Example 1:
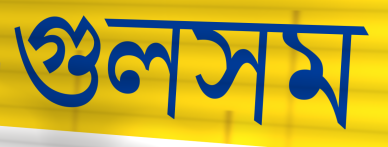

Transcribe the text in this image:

গুলসম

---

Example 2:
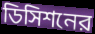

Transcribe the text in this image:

ডিসিশনের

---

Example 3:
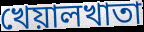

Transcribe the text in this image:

খেয়ালখাতা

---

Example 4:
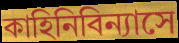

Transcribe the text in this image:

কাহিনিবিন্যাসে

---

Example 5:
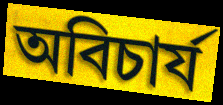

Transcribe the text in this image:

অবিচার্য